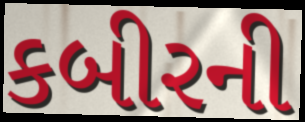
કબીરની